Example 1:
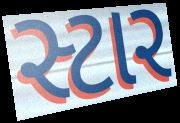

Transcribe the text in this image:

સ્ટાર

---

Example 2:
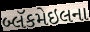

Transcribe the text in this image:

બ્લૅકમેઇલના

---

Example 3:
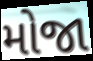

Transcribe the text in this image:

મોજા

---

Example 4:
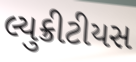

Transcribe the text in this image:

લ્યુક્રીટીયસ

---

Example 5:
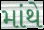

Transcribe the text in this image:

માંથે